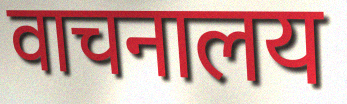
वाचनालय